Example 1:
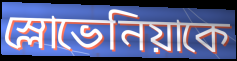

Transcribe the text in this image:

স্লোভেনিয়াকে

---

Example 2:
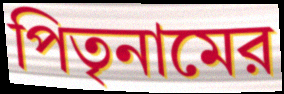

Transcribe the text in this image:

পিতৃনামের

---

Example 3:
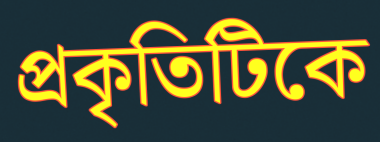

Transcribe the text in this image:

প্রকৃতিটিকে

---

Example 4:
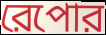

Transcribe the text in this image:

রেপোর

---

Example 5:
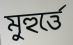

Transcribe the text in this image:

মুহুর্ত্তে